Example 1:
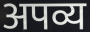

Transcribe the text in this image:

अपव्य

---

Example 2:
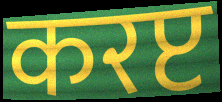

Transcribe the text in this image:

करप्ट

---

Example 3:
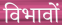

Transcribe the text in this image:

विभावों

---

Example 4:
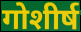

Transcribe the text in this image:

गोशीर्ष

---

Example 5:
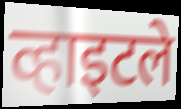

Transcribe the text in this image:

व्हाइटले